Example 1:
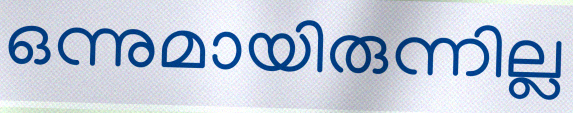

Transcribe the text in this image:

ഒന്നുമായിരുന്നില്ല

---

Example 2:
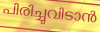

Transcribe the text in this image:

പിരിച്ചുവിടാൻ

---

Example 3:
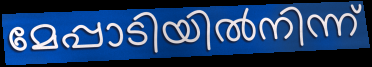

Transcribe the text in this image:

മേപ്പാടിയിൽനിന്ന്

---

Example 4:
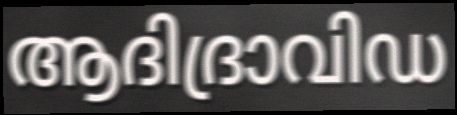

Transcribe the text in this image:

ആദിദ്രാവിഡ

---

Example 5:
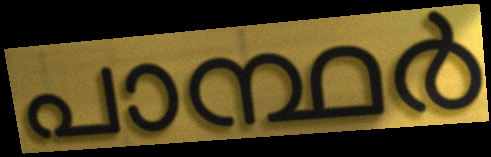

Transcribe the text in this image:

പാന്ഥർ